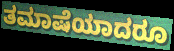
ತಮಾಷೆಯಾದರೂ